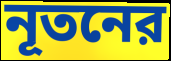
নূতনের